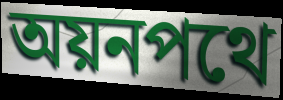
অয়নপথে